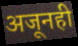
अजूनही